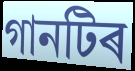
গানটিৰ